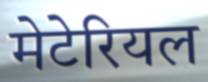
मेटेरियल